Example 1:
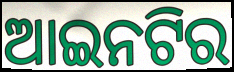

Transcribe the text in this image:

ଆଇନଟିର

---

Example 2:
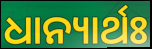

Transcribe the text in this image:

ଧାନ୍ୟାର୍ଥଃ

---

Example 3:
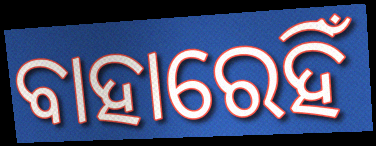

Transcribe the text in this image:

ବାହାରେହିଁ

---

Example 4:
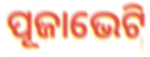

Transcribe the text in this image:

ପୂଜାଭେଟି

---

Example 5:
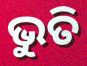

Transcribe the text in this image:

ଭୁତି